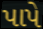
પાપે